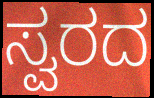
ಸ್ವರದ